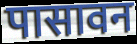
पासावन